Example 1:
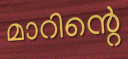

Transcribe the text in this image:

മാറിന്റെ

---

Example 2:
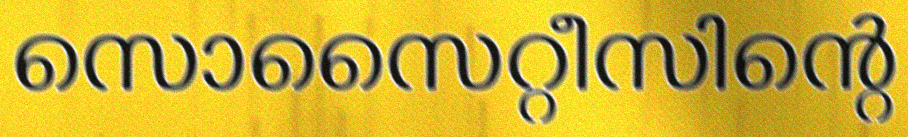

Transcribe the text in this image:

സൊസൈറ്റീസിന്റെ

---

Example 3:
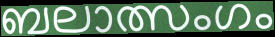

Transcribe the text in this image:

ബലാത്സംഗം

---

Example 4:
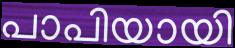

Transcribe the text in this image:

പാപിയായി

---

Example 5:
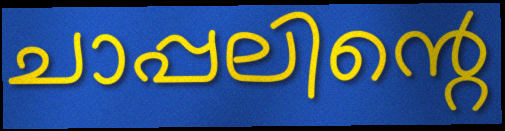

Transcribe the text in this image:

ചാപ്പലിന്റെ